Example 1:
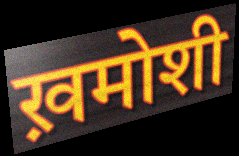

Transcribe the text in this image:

ख़मोशी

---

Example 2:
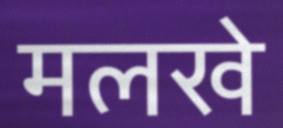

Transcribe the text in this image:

मलखे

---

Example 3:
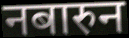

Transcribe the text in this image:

नबारुन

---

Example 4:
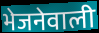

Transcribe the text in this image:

भेजनेवाली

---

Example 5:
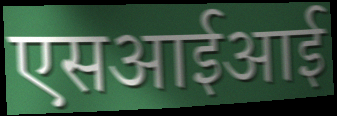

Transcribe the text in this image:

एसआईआई